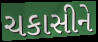
ચકાસીને